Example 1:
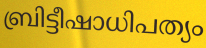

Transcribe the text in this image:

ബ്രിട്ടീഷാധിപത്യം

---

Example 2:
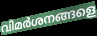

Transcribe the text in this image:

വിമർശനങ്ങളെ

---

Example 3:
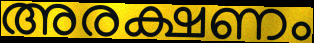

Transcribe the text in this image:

അരക്ഷണം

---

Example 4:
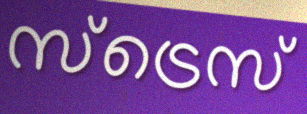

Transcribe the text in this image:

സ്ട്രെസ്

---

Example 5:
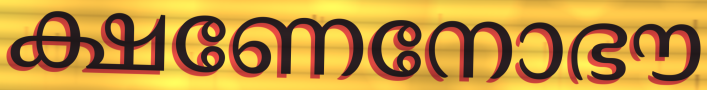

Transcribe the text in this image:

ക്ഷണേനോഭൗ